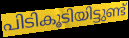
പിടികൂടിയിട്ടുണ്ട്